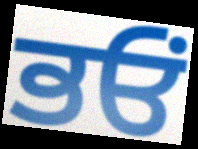
ਭਓਂ